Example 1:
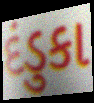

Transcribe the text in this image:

દંડુકા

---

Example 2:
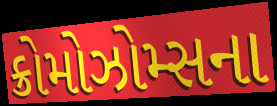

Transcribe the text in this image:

ક્રોમોઝોમ્સના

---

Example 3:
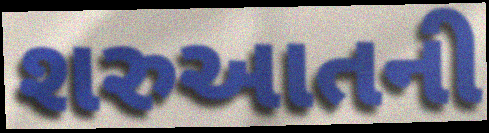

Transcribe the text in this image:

શરુઆતની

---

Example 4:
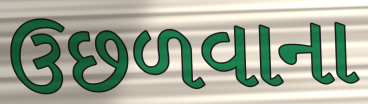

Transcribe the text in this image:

ઉછળવાના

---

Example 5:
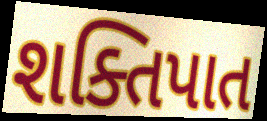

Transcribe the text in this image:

શક્તિપાત